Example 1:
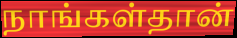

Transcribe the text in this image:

நாங்கள்தான்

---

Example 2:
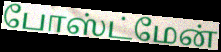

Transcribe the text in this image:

போஸ்ட்மேன்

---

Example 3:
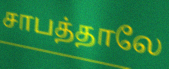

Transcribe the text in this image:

சாபத்தாலே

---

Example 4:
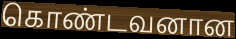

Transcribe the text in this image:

கொண்டவனான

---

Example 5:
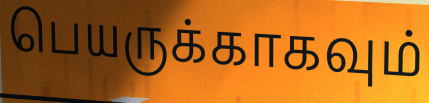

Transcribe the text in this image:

பெயருக்காகவும்